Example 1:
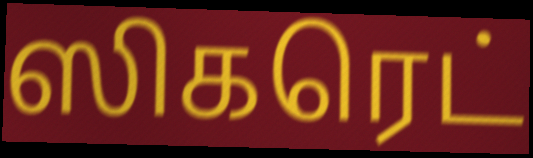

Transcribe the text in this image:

ஸிகரெட்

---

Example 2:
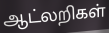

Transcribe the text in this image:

ஆட்லறிகள்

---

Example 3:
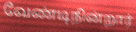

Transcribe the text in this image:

வேண்டிநின்றார்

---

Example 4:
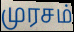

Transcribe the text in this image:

முரசம்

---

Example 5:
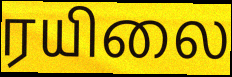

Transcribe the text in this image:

ரயிலை